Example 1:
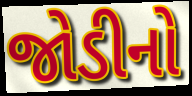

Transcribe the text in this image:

જોડીનો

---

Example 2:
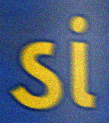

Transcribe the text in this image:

ડાં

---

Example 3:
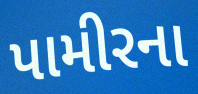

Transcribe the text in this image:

પામીરના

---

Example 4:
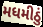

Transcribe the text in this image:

મધમીઠું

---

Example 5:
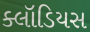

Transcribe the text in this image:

ક્લૉડિયસ